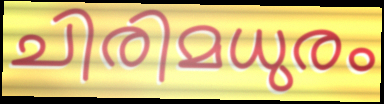
ചിരിമധുരം